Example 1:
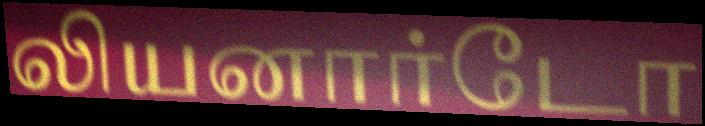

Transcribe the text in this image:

லியனார்டோ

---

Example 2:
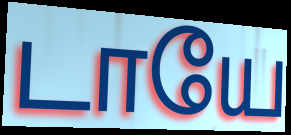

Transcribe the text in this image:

டாயே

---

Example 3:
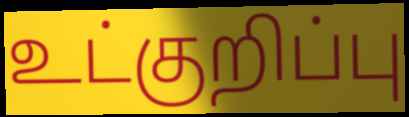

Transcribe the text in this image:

உட்குறிப்பு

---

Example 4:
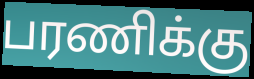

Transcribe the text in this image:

பரணிக்கு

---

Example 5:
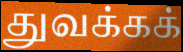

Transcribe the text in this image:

துவக்கக்